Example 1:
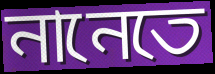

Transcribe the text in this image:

নানেতে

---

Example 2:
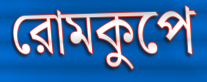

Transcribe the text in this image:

রোমকুপে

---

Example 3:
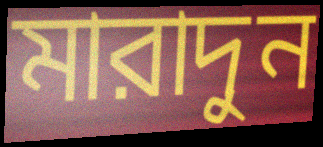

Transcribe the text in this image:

মারাদুন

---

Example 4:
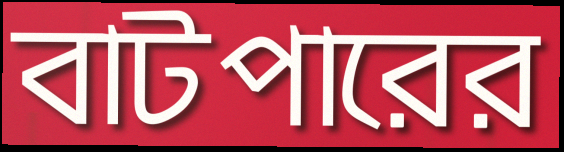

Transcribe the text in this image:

বাটপারের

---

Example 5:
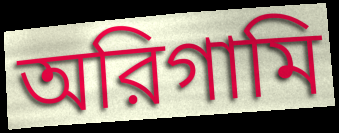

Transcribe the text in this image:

অরিগামি